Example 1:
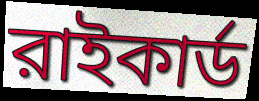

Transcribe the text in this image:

রাইকার্ড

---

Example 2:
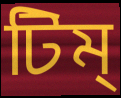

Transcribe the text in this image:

টিম্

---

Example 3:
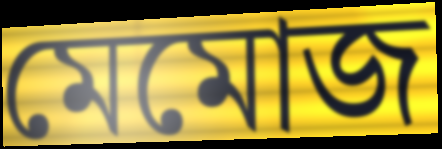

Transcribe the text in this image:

মেমোজ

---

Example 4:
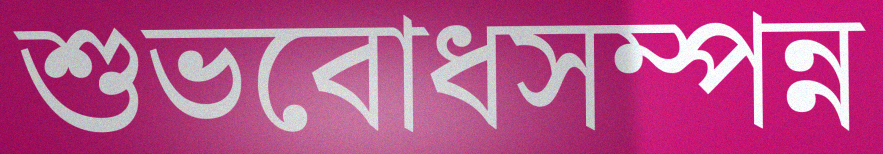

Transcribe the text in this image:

শুভবোধসম্পন্ন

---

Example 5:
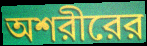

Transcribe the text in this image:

অশরীরের